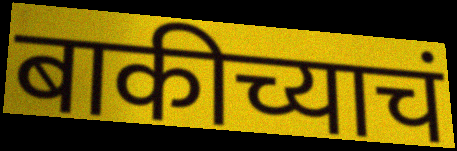
बाकीच्याचं